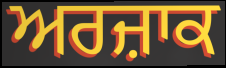
ਅਰਜ਼ਾਕ